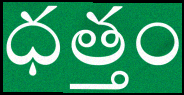
ధత్తం